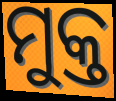
ମୁକ୍ତ